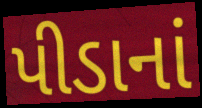
પીડાનાં